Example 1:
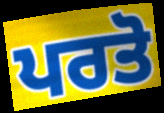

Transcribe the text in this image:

ਪਰਤੋ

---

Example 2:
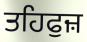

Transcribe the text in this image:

ਤਹਿਫੁਜ਼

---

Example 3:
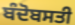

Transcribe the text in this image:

ਬੰਦੋਬਸਤੀ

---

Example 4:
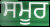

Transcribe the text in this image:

ਸਮੂਰ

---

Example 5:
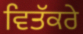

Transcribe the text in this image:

ਵਿਤੱਕਰੇ